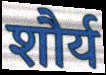
शौर्य